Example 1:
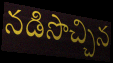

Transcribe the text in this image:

నడిసొచ్చిన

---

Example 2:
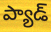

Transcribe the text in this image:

ప్యాడ్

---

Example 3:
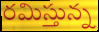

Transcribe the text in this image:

రమిస్తున్న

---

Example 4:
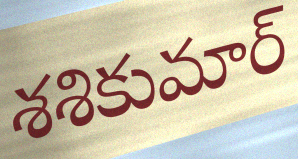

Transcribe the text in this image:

శశికుమార్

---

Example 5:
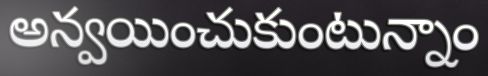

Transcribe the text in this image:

అన్వయించుకుంటున్నాం